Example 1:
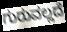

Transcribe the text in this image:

ಗುರುವಲ್ಲದೆ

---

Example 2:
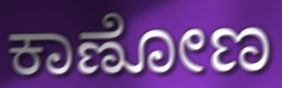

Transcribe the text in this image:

ಕಾಣೋಣ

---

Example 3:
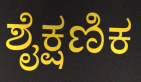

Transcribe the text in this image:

ಶೈಕ್ಷಣಿಕ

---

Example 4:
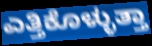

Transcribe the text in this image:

ಎತ್ತಿಕೊಳ್ಳುತ್ತಾ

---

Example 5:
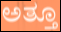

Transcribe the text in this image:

ಅತ್ತೂ